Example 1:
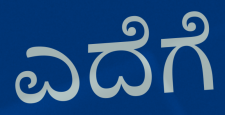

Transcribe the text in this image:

ಎದೆಗೆ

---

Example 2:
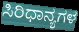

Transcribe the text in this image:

ಸಿರಿಧಾನ್ಯಗಳ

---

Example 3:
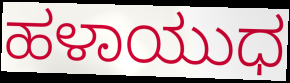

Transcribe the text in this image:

ಹಳಾಯುಧ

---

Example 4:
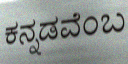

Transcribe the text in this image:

ಕನ್ನಡವೆಂಬ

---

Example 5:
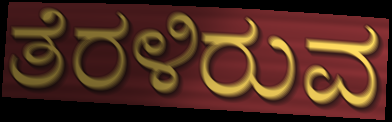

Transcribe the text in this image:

ತೆರಳಿರುವ